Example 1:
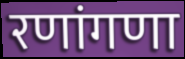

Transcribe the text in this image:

रणांगणा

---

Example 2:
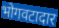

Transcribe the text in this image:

भोगवटादार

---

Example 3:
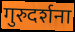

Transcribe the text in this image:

गुरुदर्शना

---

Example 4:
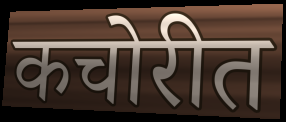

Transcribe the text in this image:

कचोरीत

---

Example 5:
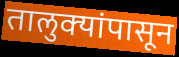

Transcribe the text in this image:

तालुक्यांपासून